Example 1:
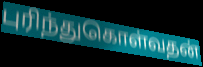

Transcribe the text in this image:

புரிந்துகொள்வதன்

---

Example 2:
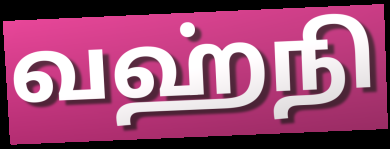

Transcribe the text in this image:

வஹ்நி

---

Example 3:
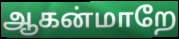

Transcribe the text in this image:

ஆகன்மாறே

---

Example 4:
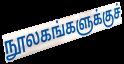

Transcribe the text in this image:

நூலகங்களுக்குச்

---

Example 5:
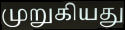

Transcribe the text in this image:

முறுகியது